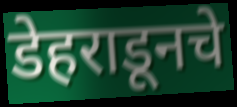
डेहराडूनचे